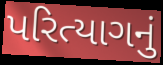
પરિત્યાગનું